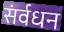
संर्वधन